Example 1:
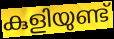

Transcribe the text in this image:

കുളിയുണ്ട്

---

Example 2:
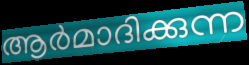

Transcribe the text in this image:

ആർമാദിക്കുന്ന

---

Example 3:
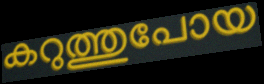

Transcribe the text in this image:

കറുത്തുപോയ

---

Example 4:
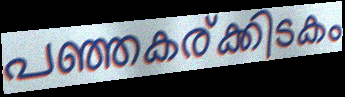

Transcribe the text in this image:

പഞ്ഞകര്ക്കിടകം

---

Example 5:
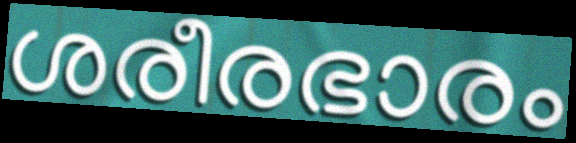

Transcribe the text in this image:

ശരീരഭാരം